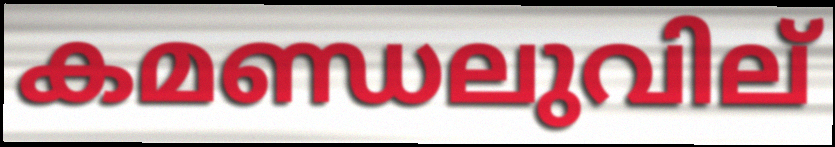
കമണ്ഡലുവില്